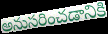
అనుసరించడానికి